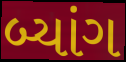
બ્યાંગ